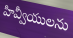
హివ్వీయులను